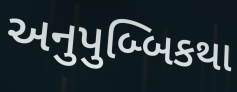
અનુપુબ્બિકથા